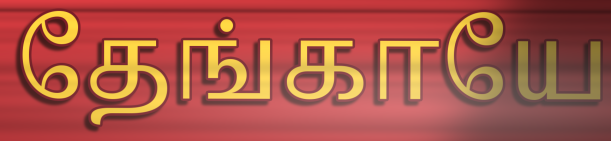
தேங்காயே